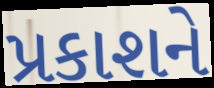
પ્રકાશને